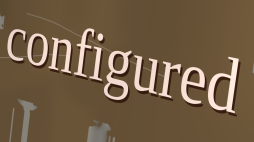
configured